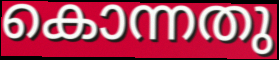
കൊന്നതു